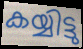
കയ്യിട്ടു